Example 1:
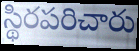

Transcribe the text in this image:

స్థిరపరిచారు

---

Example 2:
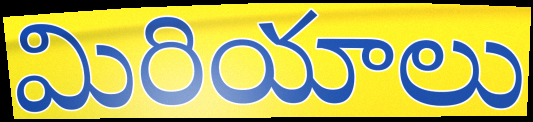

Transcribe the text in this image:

మిరియాలు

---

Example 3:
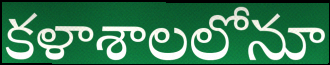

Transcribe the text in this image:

కళాశాలలోనూ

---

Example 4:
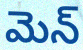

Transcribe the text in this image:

మెన్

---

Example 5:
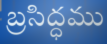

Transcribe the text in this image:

బ్రసిద్ధము